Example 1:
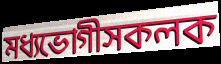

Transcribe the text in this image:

মধ্যভোগীসকলক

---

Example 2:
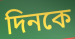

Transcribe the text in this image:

দিনকে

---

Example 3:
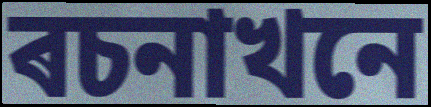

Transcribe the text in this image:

ৰচনাখনে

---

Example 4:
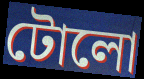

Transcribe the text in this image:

টোলো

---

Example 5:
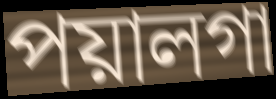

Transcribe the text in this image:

পয়ালগা